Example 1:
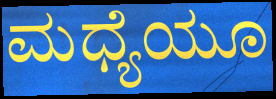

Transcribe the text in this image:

ಮಧ್ಯೆಯೂ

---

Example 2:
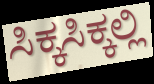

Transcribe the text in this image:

ಸಿಕ್ಕಸಿಕ್ಕಲ್ಲಿ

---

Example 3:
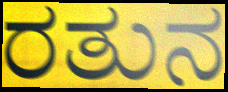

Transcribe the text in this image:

ರತುನ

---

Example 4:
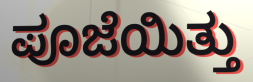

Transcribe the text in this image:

ಪೂಜೆಯಿತ್ತು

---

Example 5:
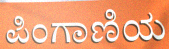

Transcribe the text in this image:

ಪಿಂಗಾಣಿಯ